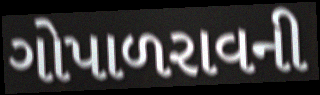
ગોપાળરાવની